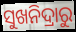
ସୁଖନିଦ୍ରାରୁ